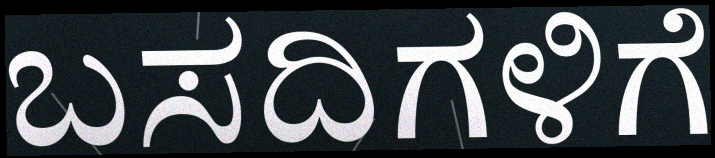
ಬಸದಿಗಳಿಗೆ